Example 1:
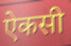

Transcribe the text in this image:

ऐकसी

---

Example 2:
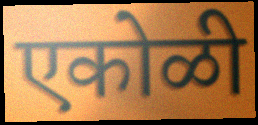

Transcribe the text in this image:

एकोळी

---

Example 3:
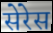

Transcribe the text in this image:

सेरेस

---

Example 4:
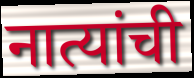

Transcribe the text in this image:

नात्यांची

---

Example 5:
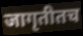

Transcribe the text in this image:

जागृतीतच